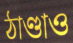
ঠাণ্ডাও